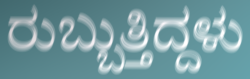
ರುಬ್ಬುತ್ತಿದ್ದಳು